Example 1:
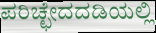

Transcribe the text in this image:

ಪರಿಚ್ಛೇದದಡಿಯಲ್ಲಿ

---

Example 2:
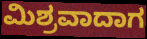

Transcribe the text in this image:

ಮಿಶ್ರವಾದಾಗ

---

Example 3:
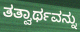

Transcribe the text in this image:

ತತ್ವಾರ್ಥವನ್ನು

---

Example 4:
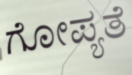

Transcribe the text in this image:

ಗೋಪ್ಯತೆ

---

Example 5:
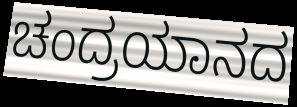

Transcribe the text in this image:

ಚಂದ್ರಯಾನದ